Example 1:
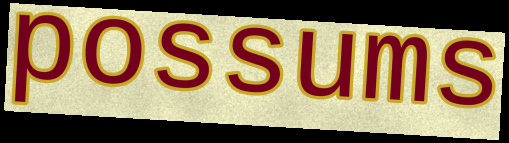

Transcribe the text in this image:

possums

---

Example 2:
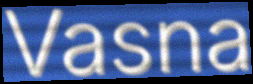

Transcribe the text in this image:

Vasna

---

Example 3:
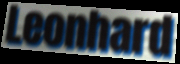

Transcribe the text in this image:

Leonhard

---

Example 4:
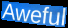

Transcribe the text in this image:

Aweful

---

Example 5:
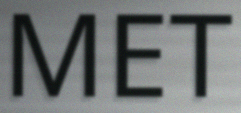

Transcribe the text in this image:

MET